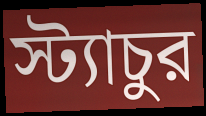
স্ট্যাচুর